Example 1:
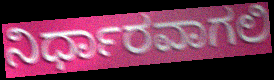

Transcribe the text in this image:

ನಿರ್ಧಾರವಾಗಲಿ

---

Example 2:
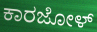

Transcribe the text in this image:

ಕಾರಜೋಳ್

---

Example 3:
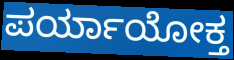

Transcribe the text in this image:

ಪರ್ಯಾಯೋಕ್ತ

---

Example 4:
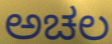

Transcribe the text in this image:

ಅಚಲ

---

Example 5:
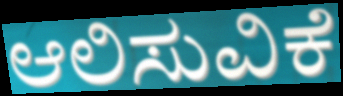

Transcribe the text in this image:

ಆಲಿಸುವಿಕೆ